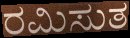
ರಮಿಸುತ